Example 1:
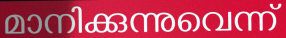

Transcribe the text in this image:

മാനിക്കുന്നുവെന്ന്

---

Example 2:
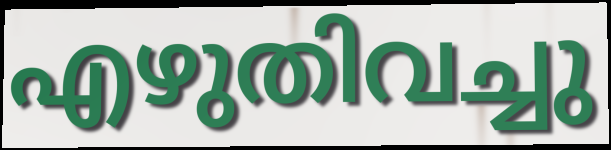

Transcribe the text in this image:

എഴുതിവച്ചു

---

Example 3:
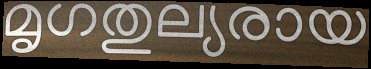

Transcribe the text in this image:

മൃഗതുല്യരായ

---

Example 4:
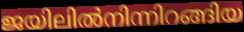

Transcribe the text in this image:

ജയിലിൽനിന്നിറങ്ങിയ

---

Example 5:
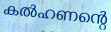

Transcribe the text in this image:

കൽഹണന്റെ